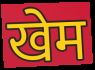
खेम